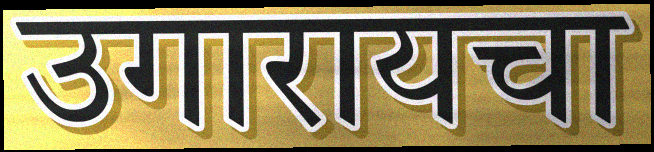
उगारायचा